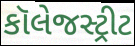
કૉલેજસ્ટ્રીટ